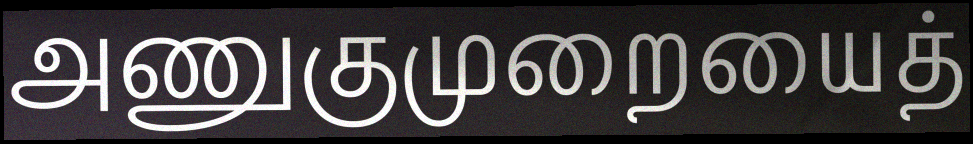
அணுகுமுறையைத்